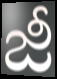
జీ